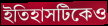
ইতিহাসটিকেও